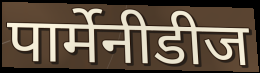
पार्मेनीडीज